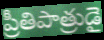
ప్రీతిపాత్రుడై